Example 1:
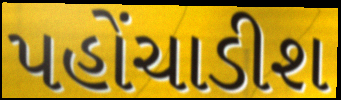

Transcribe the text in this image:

પહોંચાડીશ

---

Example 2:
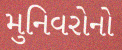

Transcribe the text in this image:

મુનિવરોનો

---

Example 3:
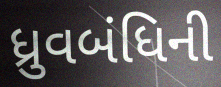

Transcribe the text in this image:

ધ્રુવબંધિની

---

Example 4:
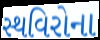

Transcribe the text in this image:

સ્થવિરોના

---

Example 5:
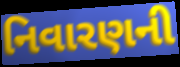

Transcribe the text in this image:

નિવારણની